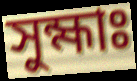
সুহ্মাঃ